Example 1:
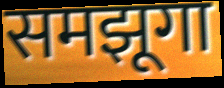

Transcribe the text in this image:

समझूगा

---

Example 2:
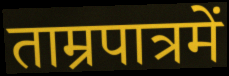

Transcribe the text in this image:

ताम्रपात्रमें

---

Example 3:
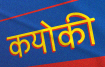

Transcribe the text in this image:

कयोकी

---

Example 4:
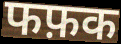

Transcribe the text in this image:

फफ़क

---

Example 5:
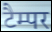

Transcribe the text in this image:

टैम्पर